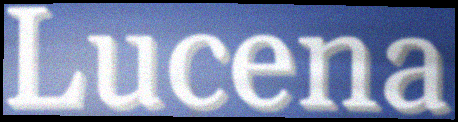
Lucena